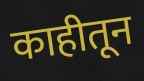
काहीतून